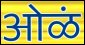
ओळं